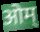
ओम्